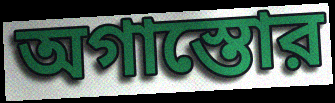
অগাস্তোর